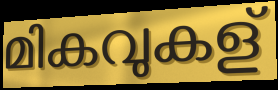
മികവുകള്